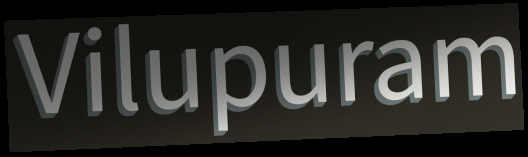
Vilupuram